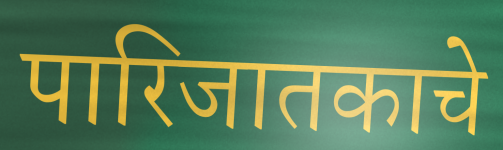
पारिजातकाचे